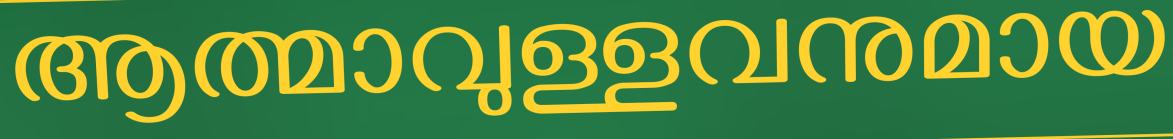
ആത്മാവുള്ളവനുമായ